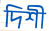
দিশী